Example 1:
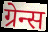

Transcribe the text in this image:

ग्रेन्स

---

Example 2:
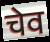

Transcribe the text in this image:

चेव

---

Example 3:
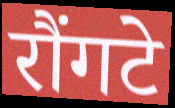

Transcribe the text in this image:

रौंगटे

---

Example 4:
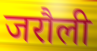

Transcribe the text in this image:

जरौली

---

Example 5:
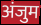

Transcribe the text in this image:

अंजुम